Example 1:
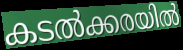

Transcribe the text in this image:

കടൽക്കരയിൽ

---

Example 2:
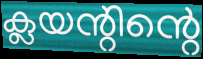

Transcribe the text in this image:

ക്ലയന്റിന്റെ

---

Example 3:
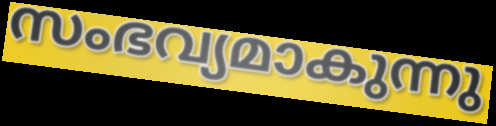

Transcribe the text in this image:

സംഭവ്യമാകുന്നു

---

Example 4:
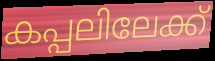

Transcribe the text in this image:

കപ്പലിലേക്ക്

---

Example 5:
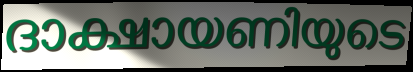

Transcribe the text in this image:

ദാക്ഷായണിയുടെ